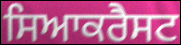
ਸਿਆਕਰੈਸਟ